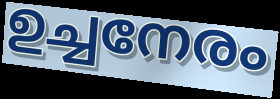
ഉച്ചനേരം